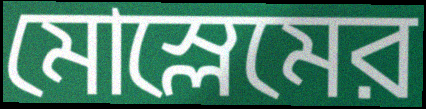
মোস্লেমের